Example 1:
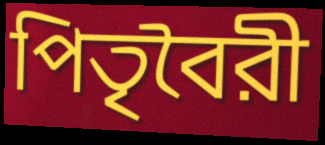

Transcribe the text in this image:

পিতৃবৈরী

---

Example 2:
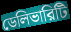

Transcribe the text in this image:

ডেলিভারিটি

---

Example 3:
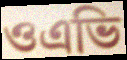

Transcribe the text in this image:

ওএভি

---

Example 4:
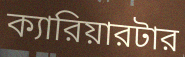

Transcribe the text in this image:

ক্যারিয়ারটার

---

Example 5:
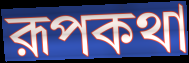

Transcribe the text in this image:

রূপকথা